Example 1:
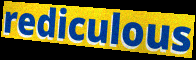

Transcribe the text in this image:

rediculous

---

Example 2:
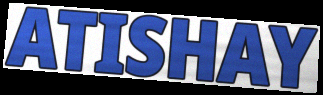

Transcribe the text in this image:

ATISHAY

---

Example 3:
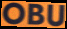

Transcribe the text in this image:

OBU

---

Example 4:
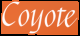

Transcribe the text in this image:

Coyote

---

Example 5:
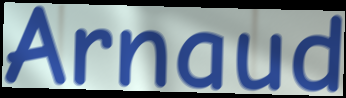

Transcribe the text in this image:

Arnaud